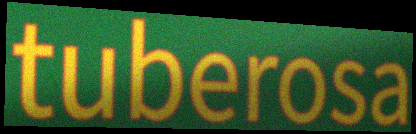
tuberosa